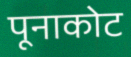
पूनाकोट